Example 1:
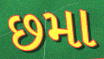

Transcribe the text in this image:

છમા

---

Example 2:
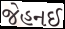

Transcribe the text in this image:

જેહનઈ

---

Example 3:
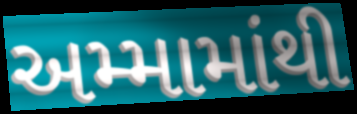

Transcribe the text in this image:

અમ્મામાંથી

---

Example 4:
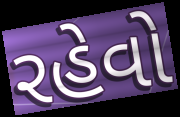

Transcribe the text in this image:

રહેવો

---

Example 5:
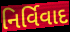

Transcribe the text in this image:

નિર્વિવાદ